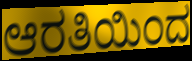
ಆರತಿಯಿಂದ